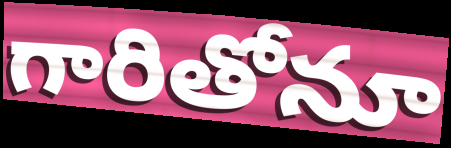
గారితోనూ